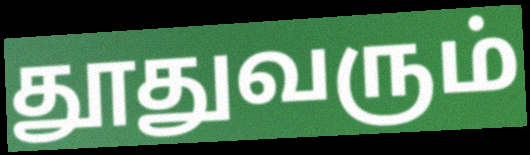
தூதுவரும்